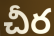
చీర